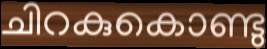
ചിറകുകൊണ്ടു